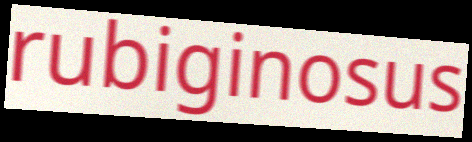
rubiginosus